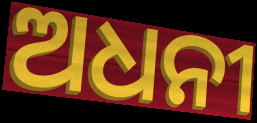
ଅଧନୀ